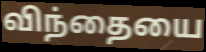
விந்தையை